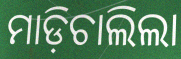
ମାଡ଼ିଚାଲିଲା